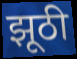
झूठी